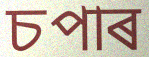
চপাৰ